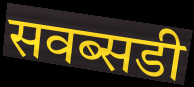
सवब्सडी